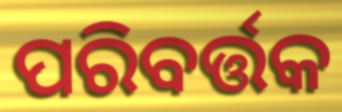
ପରିବର୍ତ୍ତକ